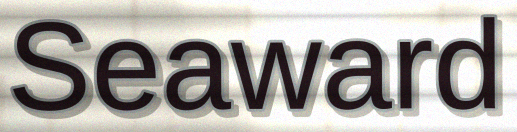
Seaward